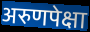
अरुणपेक्षा